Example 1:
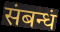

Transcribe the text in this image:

संबन्धं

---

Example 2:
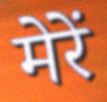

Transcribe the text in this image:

मेरें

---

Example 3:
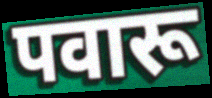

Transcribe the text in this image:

पवारू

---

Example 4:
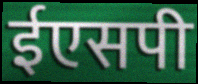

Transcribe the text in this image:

ईएसपी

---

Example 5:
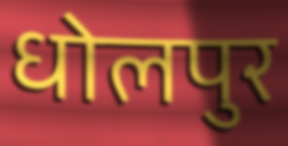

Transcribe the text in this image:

धोलपुर